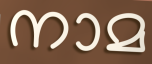
നാമ